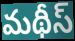
మథీస్